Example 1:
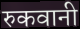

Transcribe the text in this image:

रुकवानी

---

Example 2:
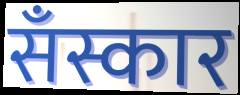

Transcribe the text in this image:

सँस्कार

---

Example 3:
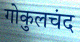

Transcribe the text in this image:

गोकुलचंद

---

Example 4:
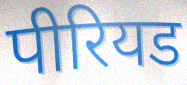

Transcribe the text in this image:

पीरियड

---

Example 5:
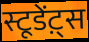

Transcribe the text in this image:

स्टूडेंट़्स